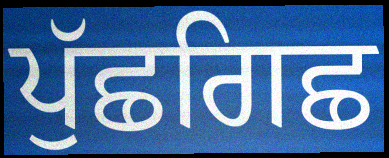
ਪੁੱਛਗਿਛ